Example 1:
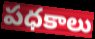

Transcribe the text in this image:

పధకాలు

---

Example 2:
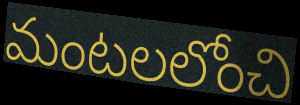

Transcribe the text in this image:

మంటలలోంచి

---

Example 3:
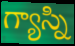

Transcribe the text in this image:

గ్యాస్ని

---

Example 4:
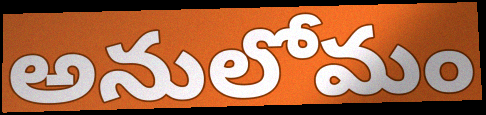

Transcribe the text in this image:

అనులోమం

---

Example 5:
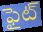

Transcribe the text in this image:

ఫైట్